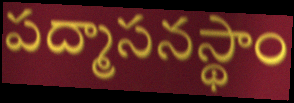
పద్మాసనస్థాం